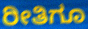
ರೀತಿಗೂ